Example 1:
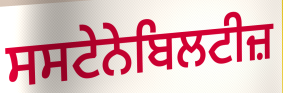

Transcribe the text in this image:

ਸਸਟੇਨੇਬਿਲਟੀਜ਼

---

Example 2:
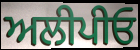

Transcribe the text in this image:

ਅਲੀਪੀਓ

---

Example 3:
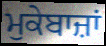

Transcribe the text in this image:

ਮੁਕੇਬਾਜ਼ਾਂ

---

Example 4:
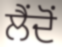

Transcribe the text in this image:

ਲੈਂਦੋਂ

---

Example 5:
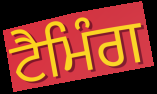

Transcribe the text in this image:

ਟੈਮਿੰਗ